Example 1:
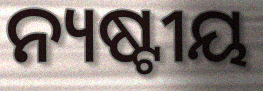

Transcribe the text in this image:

ନ୍ୟଷ୍ଟୀୟ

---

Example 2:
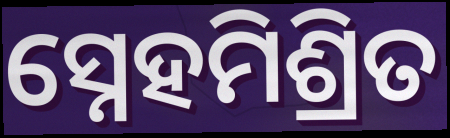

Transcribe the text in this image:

ସ୍ନେହମିଶ୍ରିତ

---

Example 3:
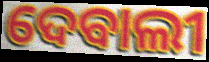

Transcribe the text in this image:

ଦେବାଲୀ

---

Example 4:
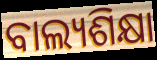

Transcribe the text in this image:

ବାଲ୍ୟଶିକ୍ଷା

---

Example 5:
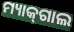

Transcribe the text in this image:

ମ୍ୟାକ୍‌ଗାଲ